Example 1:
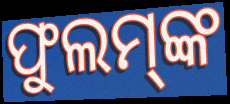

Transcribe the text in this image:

ଫୁଲମ୍‌ଙ୍କ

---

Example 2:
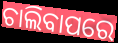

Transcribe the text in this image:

ଚାଲିବାପରେ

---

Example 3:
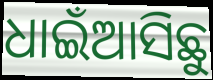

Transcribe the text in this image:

ଧାଇଁଆସିଛୁ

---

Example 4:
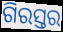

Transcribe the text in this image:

ଗିରସ୍ତର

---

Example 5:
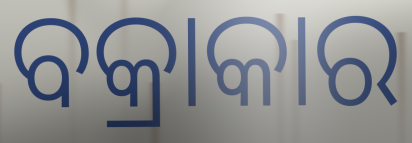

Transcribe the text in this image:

ବକ୍ରାକାର